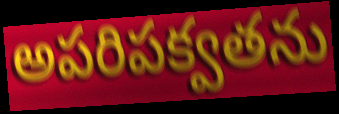
అపరిపక్వతను